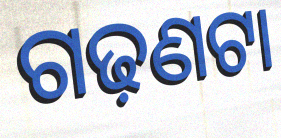
ଗଢ଼ଣଟା